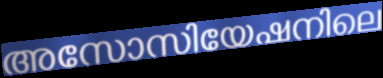
അസോസിയേഷനിലെ